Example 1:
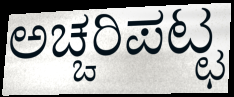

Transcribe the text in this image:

ಅಚ್ಚರಿಪಟ್ಟ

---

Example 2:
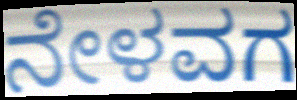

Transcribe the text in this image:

ನೇಳವಗ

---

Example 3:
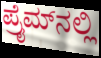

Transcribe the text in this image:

ಪ್ರೈಮ್‌ನಲ್ಲಿ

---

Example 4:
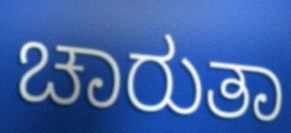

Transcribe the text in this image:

ಚಾರುತಾ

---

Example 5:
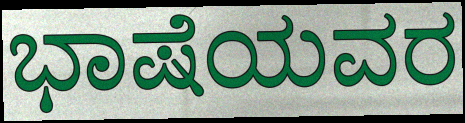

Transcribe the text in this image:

ಭಾಷೆಯವರ